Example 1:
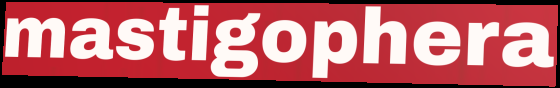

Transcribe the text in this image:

mastigophera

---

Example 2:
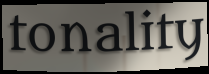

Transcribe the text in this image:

tonality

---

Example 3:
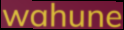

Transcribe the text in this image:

wahune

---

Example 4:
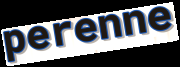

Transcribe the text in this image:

perenne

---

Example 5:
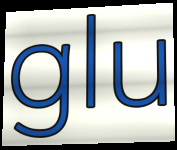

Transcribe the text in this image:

glu